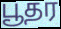
பூதர